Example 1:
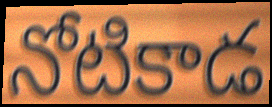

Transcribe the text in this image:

నోటికాడ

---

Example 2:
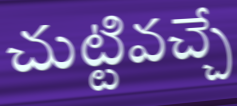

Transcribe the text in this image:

చుట్టివచ్చే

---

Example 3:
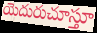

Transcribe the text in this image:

యెదురుచూస్తూ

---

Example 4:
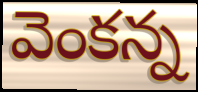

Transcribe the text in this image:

వెంకన్న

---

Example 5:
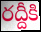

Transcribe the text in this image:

రద్దీకి